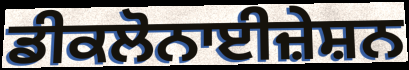
ਡੀਕਲੋਨਾਈਜ਼ੇਸ਼ਨ